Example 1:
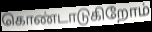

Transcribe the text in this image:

கொண்டாடுகிறோம்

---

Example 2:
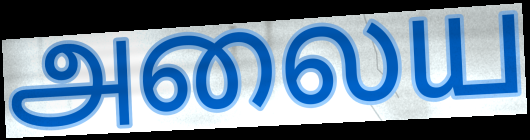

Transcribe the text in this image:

அலைய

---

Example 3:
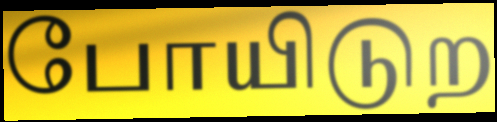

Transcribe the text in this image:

போயிடுற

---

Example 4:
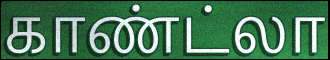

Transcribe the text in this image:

காண்ட்லா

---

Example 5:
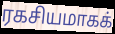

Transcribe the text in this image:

ரகசியமாகக்